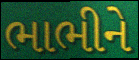
ભાભીને